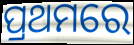
ପ୍ରଥମରେ